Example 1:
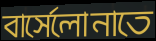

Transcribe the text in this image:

বার্সেলোনাতে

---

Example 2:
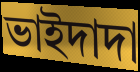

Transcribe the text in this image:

ভাইদাদা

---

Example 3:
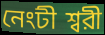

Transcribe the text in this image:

নেংটীশ্বরী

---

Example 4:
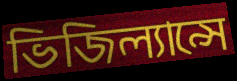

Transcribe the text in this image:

ভিজিল্যান্সে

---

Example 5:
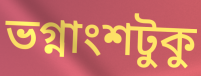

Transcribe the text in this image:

ভগ্নাংশটুকু